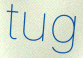
tug